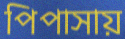
পিপাসায়